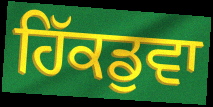
ਹਿੱਕਡੁਵਾ